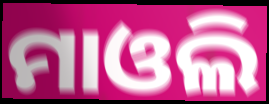
ମାଓଲି